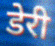
डेरी